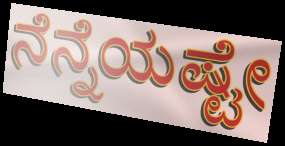
ನೆನ್ನೆಯಷ್ಟೇ